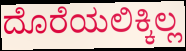
ದೊರೆಯಲಿಕ್ಕಿಲ್ಲ